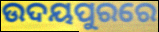
ଉଦୟପୁରରେ